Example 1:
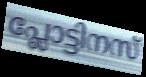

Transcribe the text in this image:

പ്ലോട്ടിനസ്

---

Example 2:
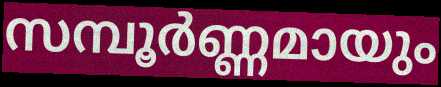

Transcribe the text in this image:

സമ്പൂർണ്ണമായും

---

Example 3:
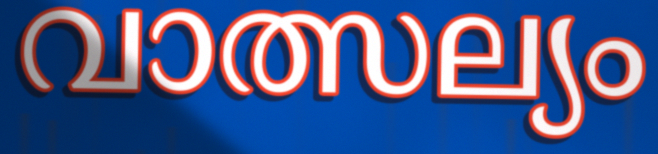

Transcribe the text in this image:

വാത്സല്യം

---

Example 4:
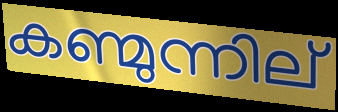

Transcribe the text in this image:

കണ്മുന്നില്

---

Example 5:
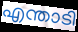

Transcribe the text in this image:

എന്താടി